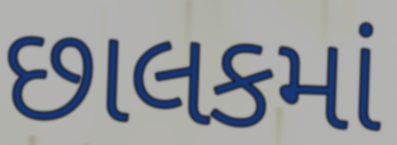
છાલકમાં